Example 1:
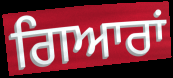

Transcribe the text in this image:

ਗਿਆਰਾਂ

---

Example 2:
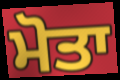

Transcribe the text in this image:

ਮੋਤਾ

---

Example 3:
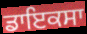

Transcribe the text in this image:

ਡਾਇਕਸਾ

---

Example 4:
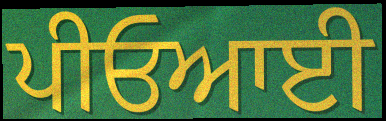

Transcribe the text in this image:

ਪੀਓਆਈ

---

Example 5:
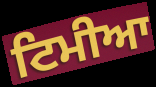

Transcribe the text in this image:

ਟਿਮੀਆ